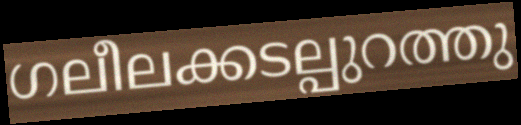
ഗലീലക്കടല്പുറത്തു